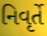
નિવૃર્તે